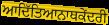
ਆਦਿੱਤਿਆਨਾਥਕੇਂਦਰੀ